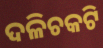
ଦଳିଚକଟି